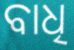
ବାଧି